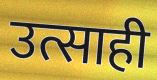
उत्साही